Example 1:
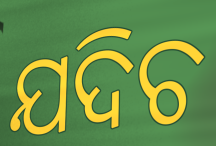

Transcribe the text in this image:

ଯଦିଚ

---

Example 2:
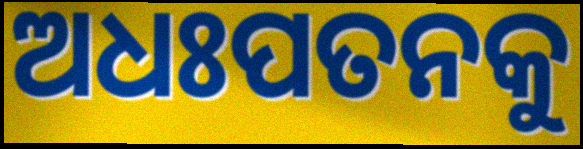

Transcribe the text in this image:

ଅଧଃପତନକୁ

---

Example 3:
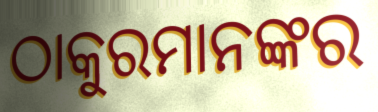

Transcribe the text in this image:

ଠାକୁରମାନଙ୍କର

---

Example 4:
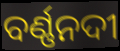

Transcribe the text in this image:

ବର୍ଣ୍ଣନଦୀ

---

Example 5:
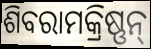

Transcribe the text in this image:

ଶିବରାମକ୍ରିଷ୍ଣନ୍